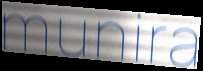
munira